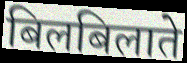
बिलबिलाते